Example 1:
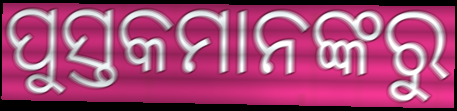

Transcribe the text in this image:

ପୁସ୍ତକମାନଙ୍କରୁ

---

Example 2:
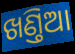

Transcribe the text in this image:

ଖଣ୍ତିଆ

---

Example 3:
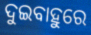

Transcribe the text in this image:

ଦୁଇବାହୁରେ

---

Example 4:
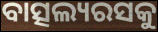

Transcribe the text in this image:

ବାତ୍ସଲ୍ୟରସକୁ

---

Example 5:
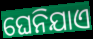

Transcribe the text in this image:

ଘେନିଯାଏ